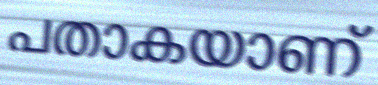
പതാകയാണ്